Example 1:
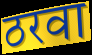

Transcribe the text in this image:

ठरवा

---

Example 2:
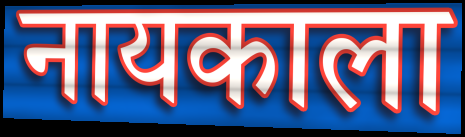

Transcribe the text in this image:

नायकाला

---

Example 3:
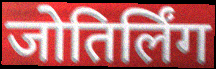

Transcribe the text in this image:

जोतिर्लिंग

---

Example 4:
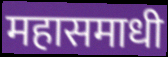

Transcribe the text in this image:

महासमाधी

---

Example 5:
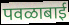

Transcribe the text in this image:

पवळाबाई